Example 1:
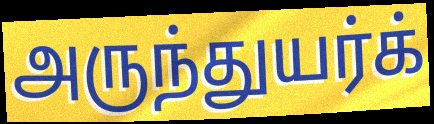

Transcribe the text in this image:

அருந்துயர்க்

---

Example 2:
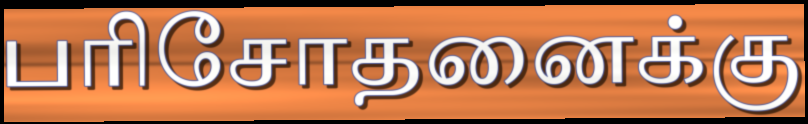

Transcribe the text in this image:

பரிசோதனைக்கு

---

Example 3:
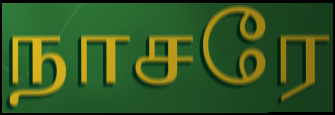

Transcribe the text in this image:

நாசரே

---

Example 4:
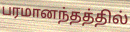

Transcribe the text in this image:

பரமானந்தத்தில்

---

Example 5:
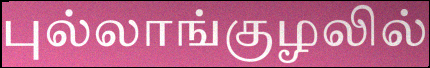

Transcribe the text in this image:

புல்லாங்குழலில்